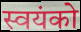
स्वयंको